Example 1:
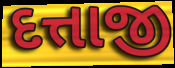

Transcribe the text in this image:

દત્તાજી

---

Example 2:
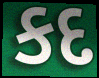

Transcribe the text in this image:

કદ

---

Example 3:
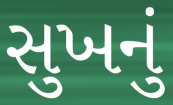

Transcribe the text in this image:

સુખનું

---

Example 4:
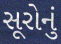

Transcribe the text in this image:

સૂરોનું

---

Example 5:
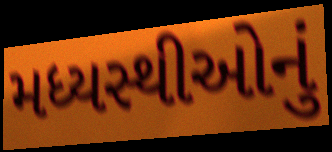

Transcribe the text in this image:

મધ્યસ્થીઓનું